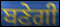
ਬਣੇਗੀ